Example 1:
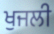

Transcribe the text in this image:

ਖੁਜਲੀ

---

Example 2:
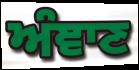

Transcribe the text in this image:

ਅੰਞਾਣ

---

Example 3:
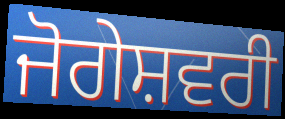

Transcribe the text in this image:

ਜੋਗੇਸ਼ਵਰੀ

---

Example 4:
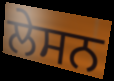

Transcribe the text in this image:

ਲੇਸਨ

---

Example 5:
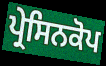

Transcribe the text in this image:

ਪ੍ਰੇਸਿਨਕੋਪ